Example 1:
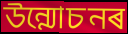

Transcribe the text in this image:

উন্মোচনৰ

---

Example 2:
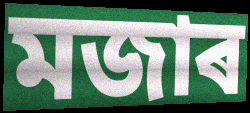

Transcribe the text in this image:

মজাৰ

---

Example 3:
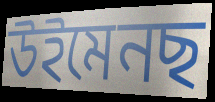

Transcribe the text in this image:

উইমেনছ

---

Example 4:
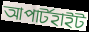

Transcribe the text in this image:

আপাৰ্টহাইট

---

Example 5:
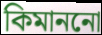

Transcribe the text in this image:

কিমাননো